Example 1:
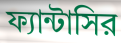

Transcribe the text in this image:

ফ্যান্টাসির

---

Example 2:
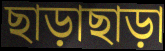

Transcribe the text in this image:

ছাড়াছাড়া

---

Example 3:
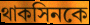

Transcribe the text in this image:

থাকসিনকে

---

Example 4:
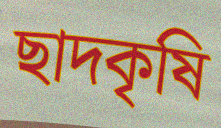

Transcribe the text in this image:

ছাদকৃষি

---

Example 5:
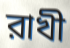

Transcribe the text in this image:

রাখী